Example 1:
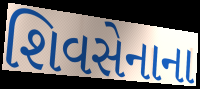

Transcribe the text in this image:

શિવસેનાના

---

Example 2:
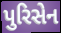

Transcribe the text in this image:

પુરિસેન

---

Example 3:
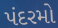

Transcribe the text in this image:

પંદરમો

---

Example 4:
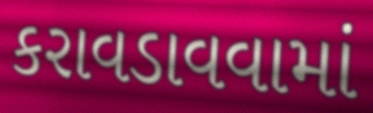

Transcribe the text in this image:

કરાવડાવવામાં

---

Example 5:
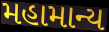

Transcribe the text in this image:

મહામાન્ય